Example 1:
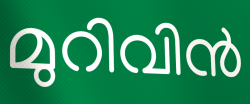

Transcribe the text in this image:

മുറിവിൻ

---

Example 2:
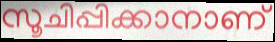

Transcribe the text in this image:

സൂചിപ്പിക്കാനാണ്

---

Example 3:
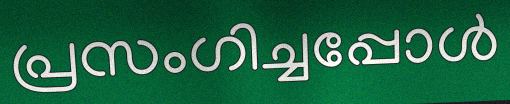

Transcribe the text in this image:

പ്രസംഗിച്ചപ്പോൾ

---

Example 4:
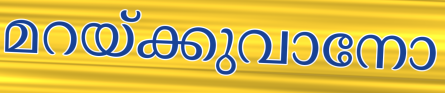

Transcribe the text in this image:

മറയ്ക്കുവാനോ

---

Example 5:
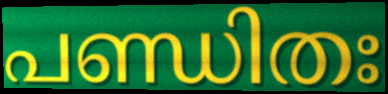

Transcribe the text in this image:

പണ്ഡിതഃ